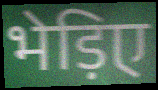
भेड़िए